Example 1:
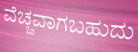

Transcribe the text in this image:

ವೆಚ್ಚವಾಗಬಹುದು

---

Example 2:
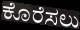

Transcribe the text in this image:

ಕೊರೆಸಲು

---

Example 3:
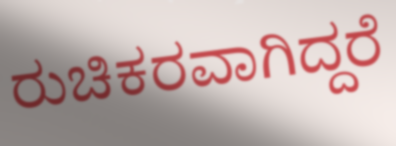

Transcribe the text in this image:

ರುಚಿಕರವಾಗಿದ್ದರೆ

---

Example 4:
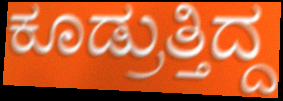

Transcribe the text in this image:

ಕೂಡ್ರುತ್ತಿದ್ದ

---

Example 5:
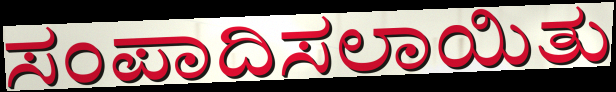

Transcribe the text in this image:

ಸಂಪಾದಿಸಲಾಯಿತು